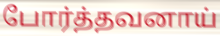
போர்த்தவனாய்